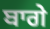
ਬਾਗੇ